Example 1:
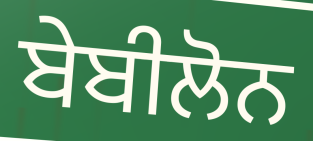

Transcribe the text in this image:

ਬੇਬੀਲੋਨ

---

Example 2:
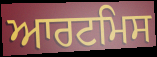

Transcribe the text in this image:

ਆਰਟਮਿਸ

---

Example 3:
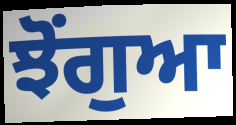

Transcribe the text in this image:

ਝੋਂਗੁਆ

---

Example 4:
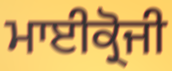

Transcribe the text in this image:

ਮਾਈਕ੍ਰੋਜੀ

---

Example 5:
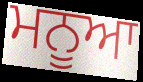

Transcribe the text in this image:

ਮਨੂਆ